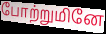
போற்றுமினே